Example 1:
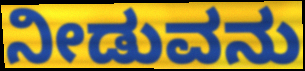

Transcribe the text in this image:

ನೀಡುವನು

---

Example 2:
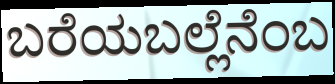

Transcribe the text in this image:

ಬರೆಯಬಲ್ಲೆನೆಂಬ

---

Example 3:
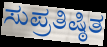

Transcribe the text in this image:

ಸುಪ್ರತಿಷ್ಠಿತ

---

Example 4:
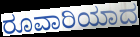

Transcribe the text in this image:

ರೂವಾರಿಯಾದ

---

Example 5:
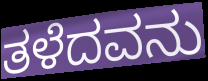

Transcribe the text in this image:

ತಳೆದವನು